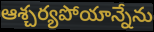
ఆశ్చర్యపోయాన్నేను